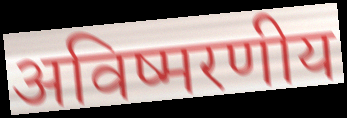
अविष्मरणीय